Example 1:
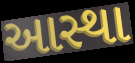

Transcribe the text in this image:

આસ્થા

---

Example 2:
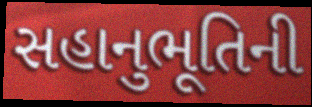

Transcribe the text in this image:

સહાનુભૂતિની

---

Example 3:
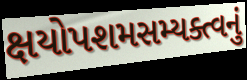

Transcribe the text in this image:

ક્ષયોપશમસમ્યક્ત્વનું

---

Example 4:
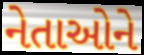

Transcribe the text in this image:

નેતાઓને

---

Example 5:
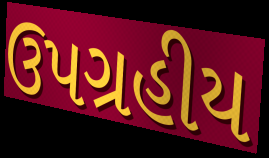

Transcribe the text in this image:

ઉપગ્રહીય